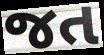
જત